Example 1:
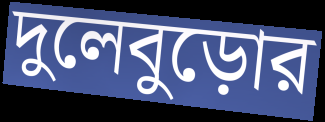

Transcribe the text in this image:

দুলেবুড়োর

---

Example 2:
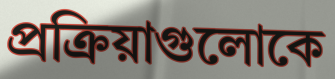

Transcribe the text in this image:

প্রক্রিয়াগুলোকে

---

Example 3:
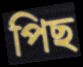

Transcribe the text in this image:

পিছ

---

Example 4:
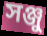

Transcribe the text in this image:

সঞ্জু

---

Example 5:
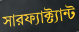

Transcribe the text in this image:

সারফ্যাক্ট্যান্ট